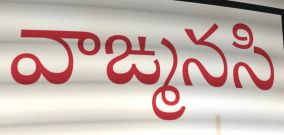
వాఙ్మనసి